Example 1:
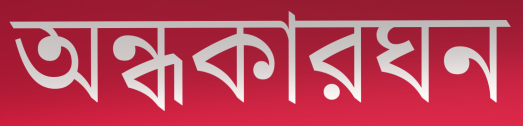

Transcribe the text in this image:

অন্ধকারঘন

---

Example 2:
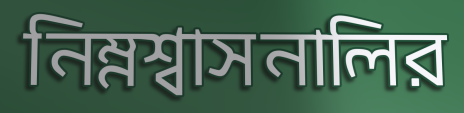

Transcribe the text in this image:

নিম্নশ্বাসনালির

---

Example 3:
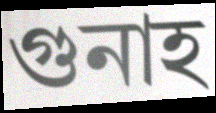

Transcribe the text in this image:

গুনাহ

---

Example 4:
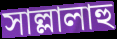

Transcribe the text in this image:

সাল্লালাহু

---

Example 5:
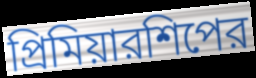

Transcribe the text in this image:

প্রিমিয়ারশিপের